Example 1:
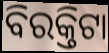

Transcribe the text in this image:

ବିରକ୍ତିଟା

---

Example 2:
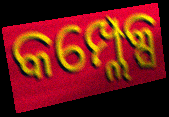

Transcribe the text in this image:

କମ୍ପ୍ଲେକ୍ସ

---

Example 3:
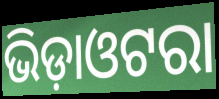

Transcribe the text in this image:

ଭିଡ଼ାଓଟରା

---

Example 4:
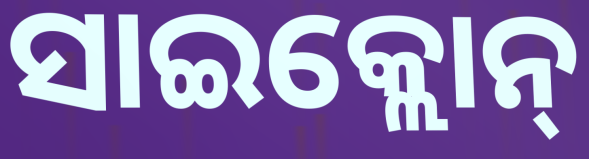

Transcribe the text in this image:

ସାଇକ୍ଲୋନ୍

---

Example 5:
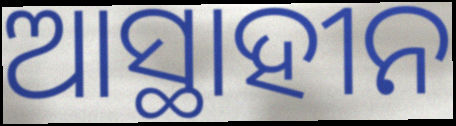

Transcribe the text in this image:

ଆସ୍ଥାହୀନ